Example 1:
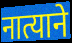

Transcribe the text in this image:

नात्याने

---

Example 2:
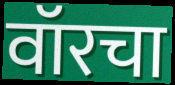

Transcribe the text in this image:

वॉरचा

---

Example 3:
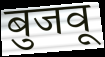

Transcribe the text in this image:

बुजवू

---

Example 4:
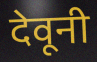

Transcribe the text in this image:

देवूनी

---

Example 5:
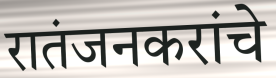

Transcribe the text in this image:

रातंजनकरांचे